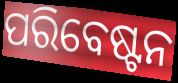
ପରିବେଷ୍ଟନ